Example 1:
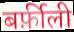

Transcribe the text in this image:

बर्फ़ीली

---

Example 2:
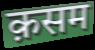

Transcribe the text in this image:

क़सम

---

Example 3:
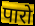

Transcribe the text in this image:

पारो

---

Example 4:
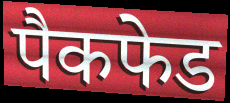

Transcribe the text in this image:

पैकफेड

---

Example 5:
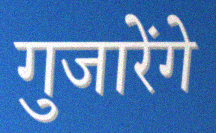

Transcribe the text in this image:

गुजारेंगे